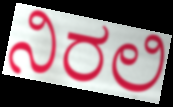
ನಿರಲಿ